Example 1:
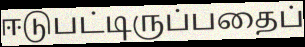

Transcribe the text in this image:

ஈடுபட்டிருப்பதைப்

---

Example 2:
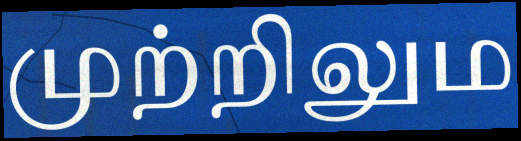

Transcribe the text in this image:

முற்றிலும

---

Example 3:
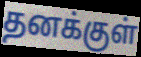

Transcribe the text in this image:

தனக்குள்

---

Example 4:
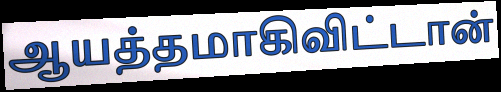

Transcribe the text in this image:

ஆயத்தமாகிவிட்டான்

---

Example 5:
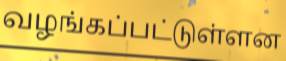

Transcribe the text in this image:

வழங்கப்பட்டுள்ளன